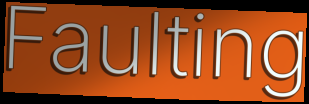
Faulting